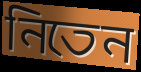
নিতেন